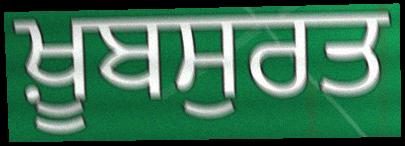
ਖ਼ੂਬਸੁਰਤ